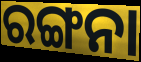
ରଙ୍ଗନା